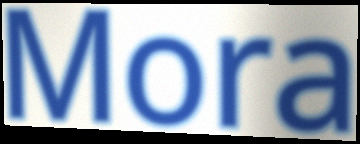
Mora